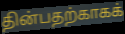
தின்பதற்காகக்